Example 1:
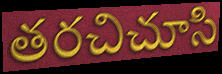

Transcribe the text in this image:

తరచిచూసి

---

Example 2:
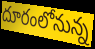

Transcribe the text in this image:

దూరంలోనున్న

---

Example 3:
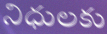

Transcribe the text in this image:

నిధులకు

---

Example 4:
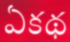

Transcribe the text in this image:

ఏకథ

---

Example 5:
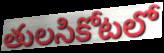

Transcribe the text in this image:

తులసికోటలో